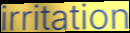
irritation